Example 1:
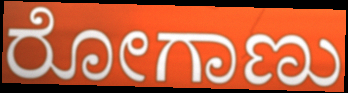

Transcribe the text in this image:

ರೋಗಾಣು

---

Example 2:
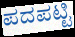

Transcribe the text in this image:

ಪದಪಟ್ಟಿ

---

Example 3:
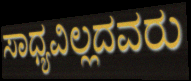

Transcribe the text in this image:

ಸಾಧ್ಯವಿಲ್ಲದವರು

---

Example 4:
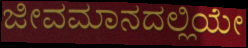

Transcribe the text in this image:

ಜೀವಮಾನದಲ್ಲಿಯೇ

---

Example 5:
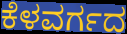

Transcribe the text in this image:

ಕೆಳವರ್ಗದ